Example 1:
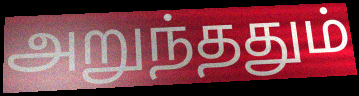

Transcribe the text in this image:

அறுந்ததும்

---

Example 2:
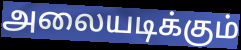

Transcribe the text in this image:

அலையடிக்கும்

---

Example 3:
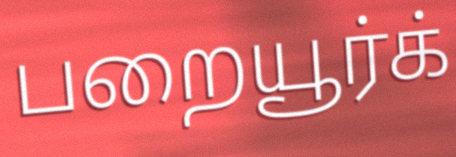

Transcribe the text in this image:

பறையூர்க்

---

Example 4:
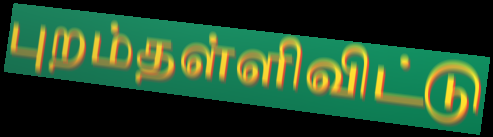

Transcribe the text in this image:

புறம்தள்ளிவிட்டு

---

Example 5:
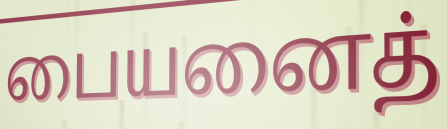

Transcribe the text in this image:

பையனைத்